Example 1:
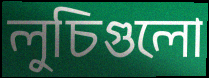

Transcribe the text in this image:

লুচিগুলো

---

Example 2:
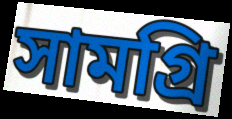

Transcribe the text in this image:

সামগ্রি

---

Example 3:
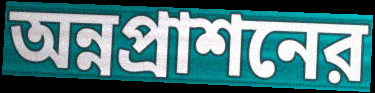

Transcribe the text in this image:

অন্নপ্রাশনের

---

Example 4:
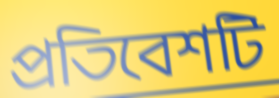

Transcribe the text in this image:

প্রতিবেশটি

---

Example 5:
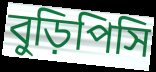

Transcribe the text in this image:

বুড়িপিসি